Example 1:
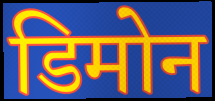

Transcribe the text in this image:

डिमोन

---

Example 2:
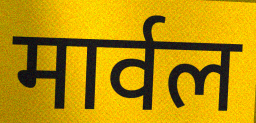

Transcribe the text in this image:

मार्वल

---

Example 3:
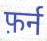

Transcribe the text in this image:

फ़र्न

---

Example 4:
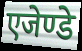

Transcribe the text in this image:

एजेण्डे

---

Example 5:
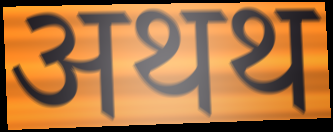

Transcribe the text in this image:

अथथ